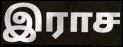
இராச